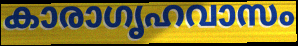
കാരാഗൃഹവാസം